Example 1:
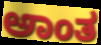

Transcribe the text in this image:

ಅಾಂತ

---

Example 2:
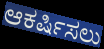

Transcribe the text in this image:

ಆಕರ್ಷಿಸಲು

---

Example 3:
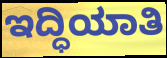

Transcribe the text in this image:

ಇದ್ಧಿಯಾತಿ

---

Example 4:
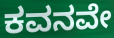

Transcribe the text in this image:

ಕವನವೇ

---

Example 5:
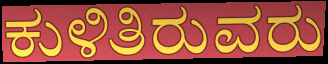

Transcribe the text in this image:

ಕುಳಿತಿರುವರು